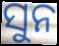
ସୁନ